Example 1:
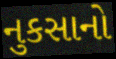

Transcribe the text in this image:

નુકસાનો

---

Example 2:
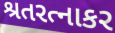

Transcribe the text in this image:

શ્રતરત્નાકર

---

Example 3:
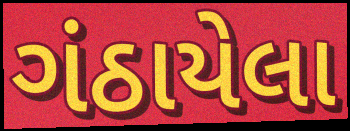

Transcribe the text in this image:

ગંઠાયેલા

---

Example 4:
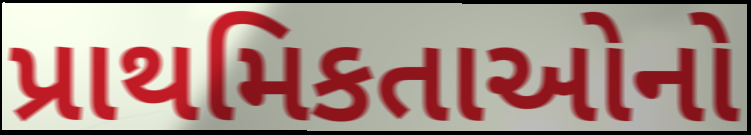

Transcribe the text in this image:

પ્રાથમિકતાઓનો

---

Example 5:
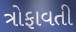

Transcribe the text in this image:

ત્રોફાવતી